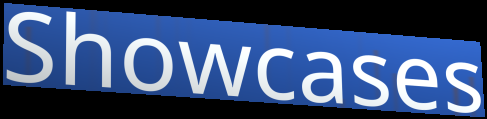
Showcases